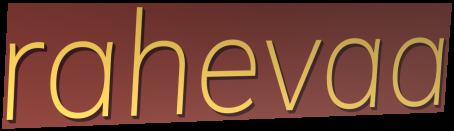
rahevaa